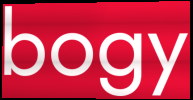
bogy